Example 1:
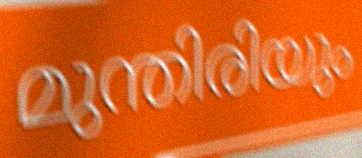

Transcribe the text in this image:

മുന്തിരിയും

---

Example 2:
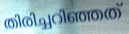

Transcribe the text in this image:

തിരിച്ചറിഞ്ഞത്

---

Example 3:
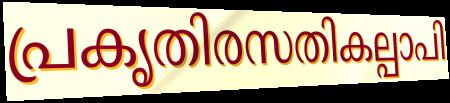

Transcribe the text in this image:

പ്രകൃതിരസതികല്പാപി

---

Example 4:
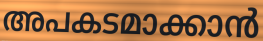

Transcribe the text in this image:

അപകടമാക്കാൻ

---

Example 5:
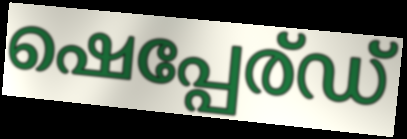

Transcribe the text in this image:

ഷെപ്പേര്ഡ്